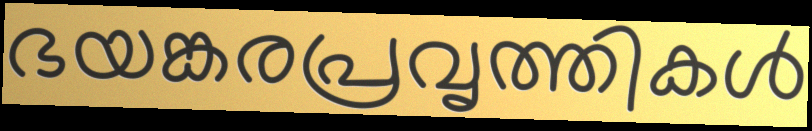
ഭയങ്കരപ്രവൃത്തികൾ